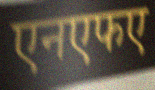
एनएफए